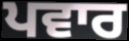
ਪਵਾਰ